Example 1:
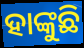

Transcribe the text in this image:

ହାଙ୍କୁଛି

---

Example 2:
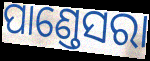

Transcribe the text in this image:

ପାଣ୍ଡେସରା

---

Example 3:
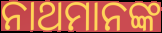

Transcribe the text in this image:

ନାଥମାନଙ୍କ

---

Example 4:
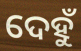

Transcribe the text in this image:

ଦେହୁଁ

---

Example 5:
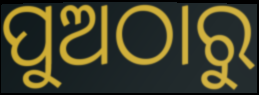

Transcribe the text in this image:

ପୁଅଠାରୁ